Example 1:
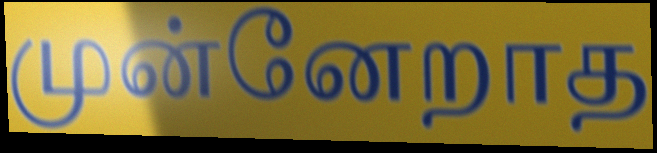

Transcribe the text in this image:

முன்னேறாத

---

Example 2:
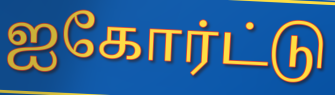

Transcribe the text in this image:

ஐகோர்ட்டு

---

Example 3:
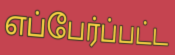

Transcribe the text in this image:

எப்பேர்ப்பட்ட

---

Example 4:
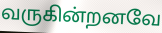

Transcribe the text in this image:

வருகின்றனவே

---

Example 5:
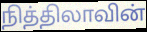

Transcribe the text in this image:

நித்திலாவின்